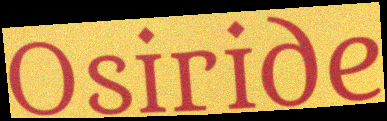
Osiride